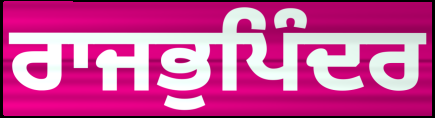
ਰਾਜਭੁਪਿੰਦਰ